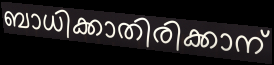
ബാധിക്കാതിരിക്കാന്